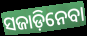
ସଜାଡ଼ିନେବା